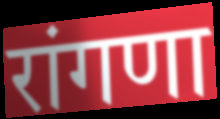
रांगणा